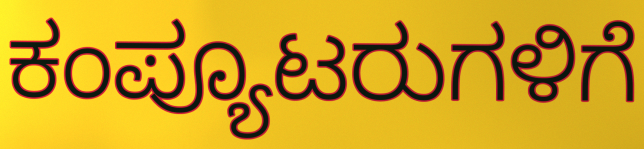
ಕಂಪ್ಯೂಟರುಗಳಿಗೆ